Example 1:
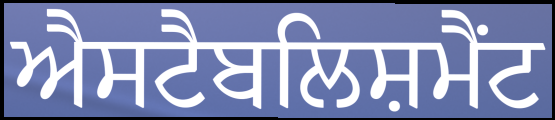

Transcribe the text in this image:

ਐਸਟੈਬਲਿਸ਼ਮੈਂਟ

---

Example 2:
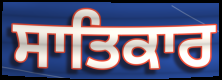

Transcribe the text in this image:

ਸਾਤਿਕਾਰ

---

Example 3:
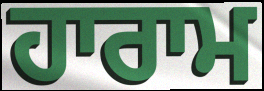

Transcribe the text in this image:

ਹਾਰਾਮ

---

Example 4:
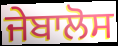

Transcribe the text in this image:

ਜੇਬਾਲੋਸ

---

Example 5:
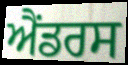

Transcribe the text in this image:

ਐਂਡਰਸ